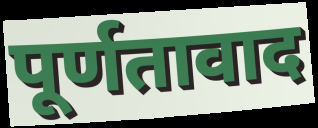
पूर्णतावाद